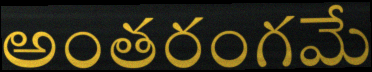
అంతరంగమే